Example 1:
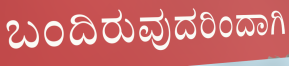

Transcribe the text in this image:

ಬಂದಿರುವುದರಿಂದಾಗಿ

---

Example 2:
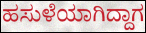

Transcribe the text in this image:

ಹಸುಳೆಯಾಗಿದ್ದಾಗ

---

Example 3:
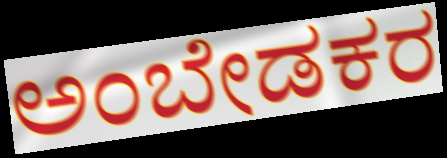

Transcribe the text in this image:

ಅಂಬೇಡಕರ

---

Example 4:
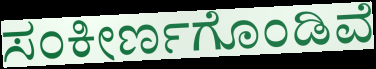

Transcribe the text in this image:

ಸಂಕೀರ್ಣಗೊಂಡಿವೆ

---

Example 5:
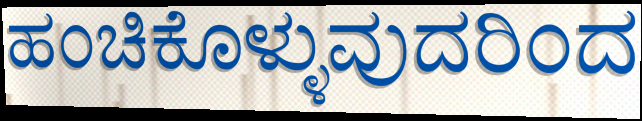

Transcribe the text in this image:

ಹಂಚಿಕೊಳ್ಳುವುದರಿಂದ